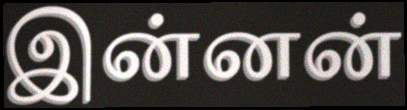
இன்னன்